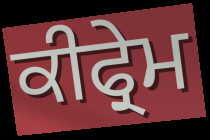
ਕੀਫ੍ਰੇਮ